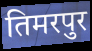
तिमरपुर